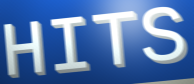
HITS